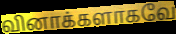
வினாக்களாகவே